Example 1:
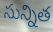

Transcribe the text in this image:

సున్నిత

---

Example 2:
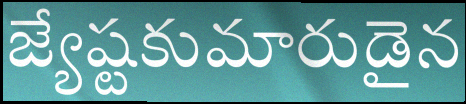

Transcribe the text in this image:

జ్యేష్టకుమారుడైన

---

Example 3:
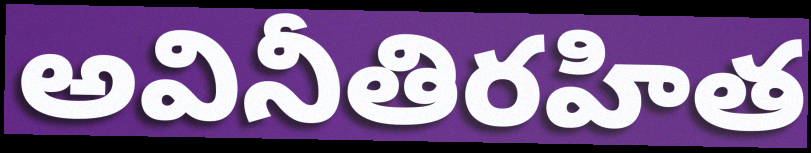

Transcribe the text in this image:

అవినీతిరహిత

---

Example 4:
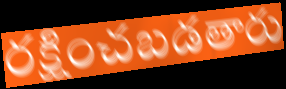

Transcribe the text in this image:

రక్షించబడతారు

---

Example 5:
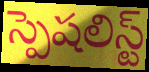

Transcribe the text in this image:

స్పెషలిస్ట్